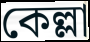
কেল্লা